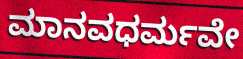
ಮಾನವಧರ್ಮವೇ